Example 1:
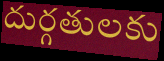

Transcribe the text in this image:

దుర్గతులకు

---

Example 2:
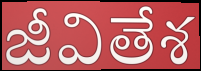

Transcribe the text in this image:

జీవితేశ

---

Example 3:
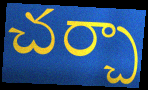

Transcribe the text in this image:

చర్చా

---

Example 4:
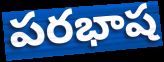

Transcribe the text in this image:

పరభాష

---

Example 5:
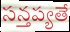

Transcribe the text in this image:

సన్తప్యతే